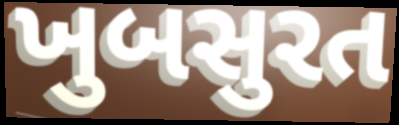
ખુબસુરત